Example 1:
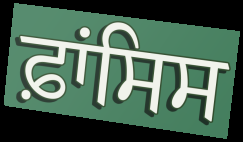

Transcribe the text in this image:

ਫ਼ਾਂਸਿਸ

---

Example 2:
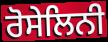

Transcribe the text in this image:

ਰੋਸੇਲਿਨੀ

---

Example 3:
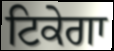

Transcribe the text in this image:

ਟਿਕੇਗਾ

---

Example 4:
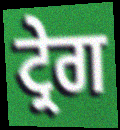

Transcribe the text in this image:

ਟ੍ਰੇਗ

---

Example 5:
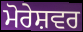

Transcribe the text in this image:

ਮੋਰੇਸ਼ਵਰ